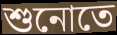
শুনোতে